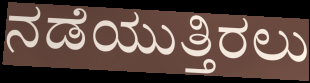
ನಡೆಯುತ್ತಿರಲು